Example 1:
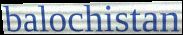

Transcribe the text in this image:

balochistan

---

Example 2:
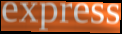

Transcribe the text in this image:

express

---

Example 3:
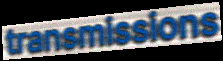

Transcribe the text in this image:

transmissions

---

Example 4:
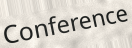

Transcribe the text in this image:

Conference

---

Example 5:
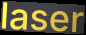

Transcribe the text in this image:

laser